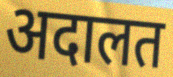
अदालत